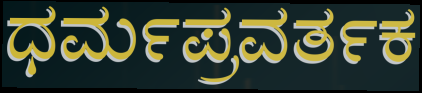
ಧರ್ಮಪ್ರವರ್ತಕ